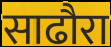
साढौरा